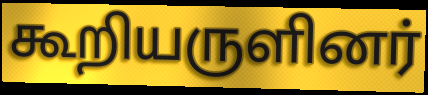
கூறியருளினர்